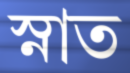
স্নাত